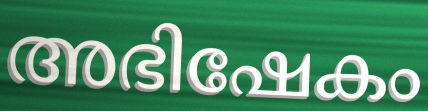
അഭിഷേകം